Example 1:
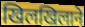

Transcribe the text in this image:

खिलखिलाने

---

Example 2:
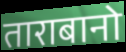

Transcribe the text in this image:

ताराबानो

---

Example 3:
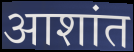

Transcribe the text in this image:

आशांत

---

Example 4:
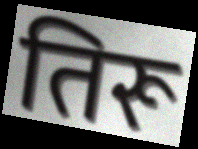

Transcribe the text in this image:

तिरू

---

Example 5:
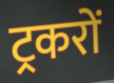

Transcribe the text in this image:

ट्रकरों